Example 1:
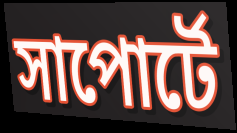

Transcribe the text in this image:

সাপোর্টে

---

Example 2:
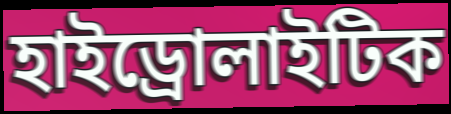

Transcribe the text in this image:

হাইড্রোলাইটিক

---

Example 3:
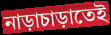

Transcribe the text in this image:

নাড়াচাড়াতেই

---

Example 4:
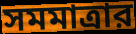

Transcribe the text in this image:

সমমাত্রার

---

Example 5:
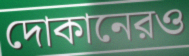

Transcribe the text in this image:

দোকানেরও